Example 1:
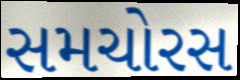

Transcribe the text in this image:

સમચોરસ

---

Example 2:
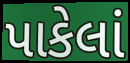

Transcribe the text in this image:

પાકેલાં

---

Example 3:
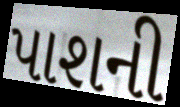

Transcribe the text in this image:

પાશની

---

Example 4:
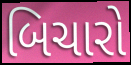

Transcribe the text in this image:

બિચારો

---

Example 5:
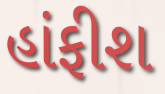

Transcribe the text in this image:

હાંફીશ